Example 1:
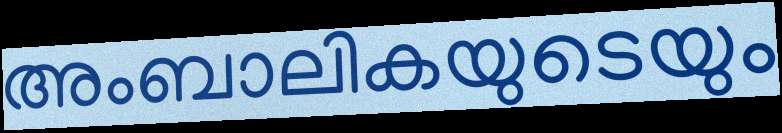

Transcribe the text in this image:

അംബാലികയുടെയും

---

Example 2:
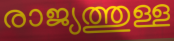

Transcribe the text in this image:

രാജ്യത്തുള്ള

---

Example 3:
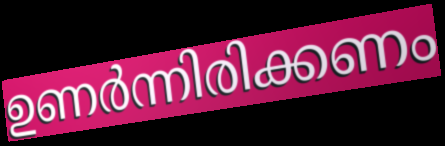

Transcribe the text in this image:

ഉണർന്നിരിക്കണം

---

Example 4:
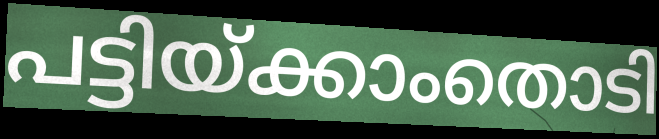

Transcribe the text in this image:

പട്ടിയ്ക്കാംതൊടി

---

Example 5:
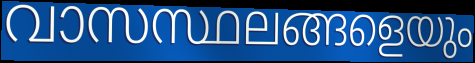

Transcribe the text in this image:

വാസസ്ഥലങ്ങളെയും